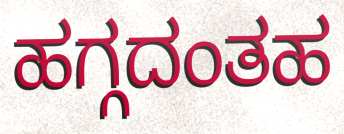
ಹಗ್ಗದಂತಹ